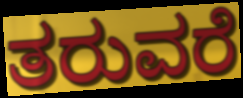
ತರುವರೆ